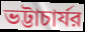
ভট্টাচার্যর